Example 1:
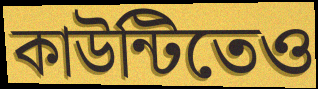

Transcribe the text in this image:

কাউন্টিতেও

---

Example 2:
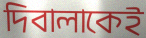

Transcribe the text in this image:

দিবালাকেই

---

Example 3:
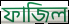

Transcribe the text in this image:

ফাজিল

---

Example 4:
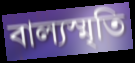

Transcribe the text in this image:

বাল্যস্মৃতি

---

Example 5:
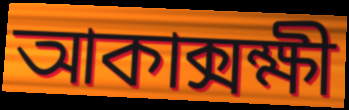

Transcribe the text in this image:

আকাক্সক্ষী